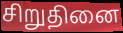
சிறுதினை